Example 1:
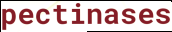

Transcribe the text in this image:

pectinases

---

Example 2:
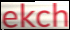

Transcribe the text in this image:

ekch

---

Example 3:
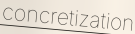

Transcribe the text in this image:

concretization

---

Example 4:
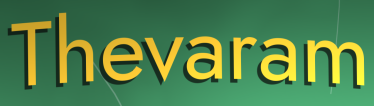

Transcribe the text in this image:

Thevaram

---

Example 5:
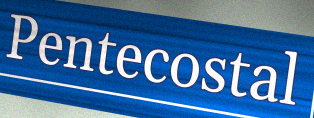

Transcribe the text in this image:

Pentecostal